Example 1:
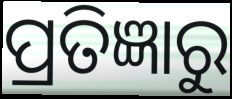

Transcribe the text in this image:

ପ୍ରତିଜ୍ଞାରୁ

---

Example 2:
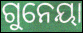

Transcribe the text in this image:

ଗୁନେୟା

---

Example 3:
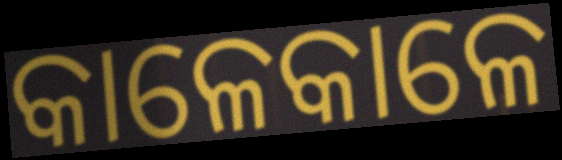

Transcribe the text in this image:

କାଳେକାଳେ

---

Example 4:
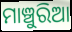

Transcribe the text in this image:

ମାଞ୍ଚୁରିଆ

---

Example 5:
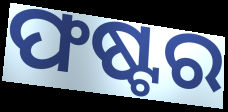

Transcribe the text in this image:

ଫଷ୍ଟର